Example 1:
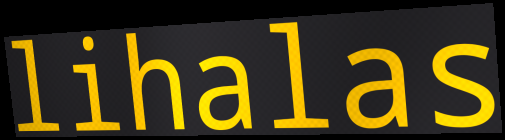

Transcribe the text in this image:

lihalas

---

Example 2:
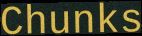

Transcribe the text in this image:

Chunks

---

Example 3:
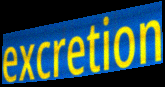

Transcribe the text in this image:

excretion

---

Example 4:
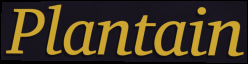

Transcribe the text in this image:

Plantain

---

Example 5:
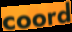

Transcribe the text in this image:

coord